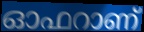
ഓഫറാണ്